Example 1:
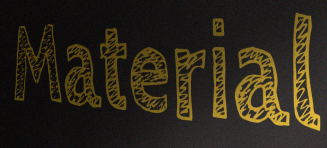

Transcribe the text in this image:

Material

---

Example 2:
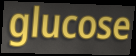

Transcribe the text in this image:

glucose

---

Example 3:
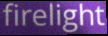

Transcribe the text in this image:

firelight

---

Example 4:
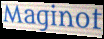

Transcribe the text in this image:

Maginot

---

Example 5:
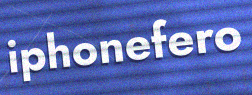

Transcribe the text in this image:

iphonefero